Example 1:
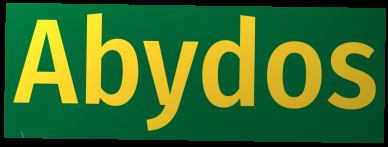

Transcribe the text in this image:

Abydos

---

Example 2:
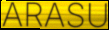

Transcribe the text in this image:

ARASU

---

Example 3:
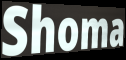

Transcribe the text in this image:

Shoma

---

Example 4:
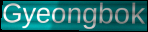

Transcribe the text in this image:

Gyeongbok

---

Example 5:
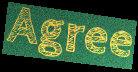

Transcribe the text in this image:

Agree